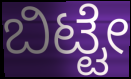
ಬಿಟ್ಟೇ